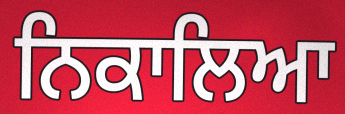
ਨਿਕਾਲਿਆ